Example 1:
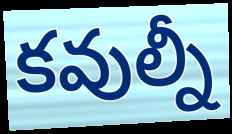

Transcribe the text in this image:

కవుల్నీ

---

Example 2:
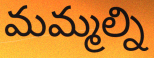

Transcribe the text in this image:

మమ్మల్ని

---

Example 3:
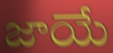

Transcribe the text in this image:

జాయే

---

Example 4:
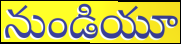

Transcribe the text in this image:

నుండియూ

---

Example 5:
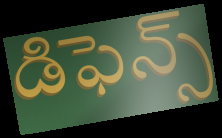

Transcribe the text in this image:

డిఫెన్స్